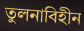
তুলনাবিহীন